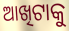
ଆଖିଟାକୁ